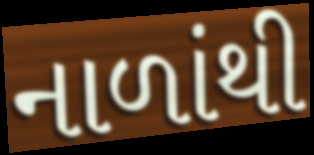
નાળાંથી